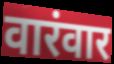
वारंवार